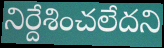
నిర్దేశించలేదని